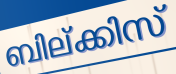
ബില്ക്കിസ്